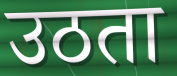
उठता